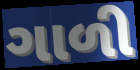
ગાળી